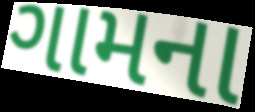
ગામના